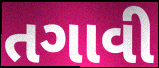
તગાવી